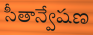
సీతాన్వేషణ